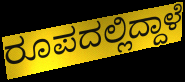
ರೂಪದಲ್ಲಿದ್ದಾಳೆ